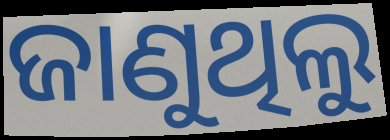
ଜାଣୁଥିଲୁ